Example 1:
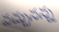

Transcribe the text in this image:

వచ్చునన్న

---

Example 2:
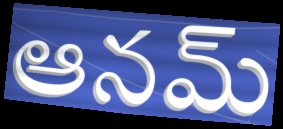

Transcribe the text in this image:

ఆనమ్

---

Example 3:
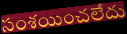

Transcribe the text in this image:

సంశయించలేదు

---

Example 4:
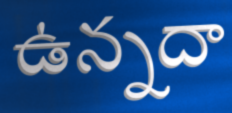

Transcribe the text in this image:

ఉన్నదా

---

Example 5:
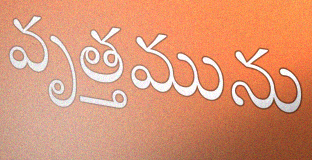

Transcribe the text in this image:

వృత్తమును